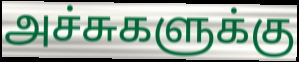
அச்சுகளுக்கு